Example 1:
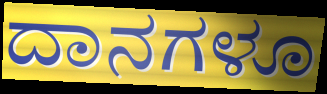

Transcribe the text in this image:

ದಾನಗಳೂ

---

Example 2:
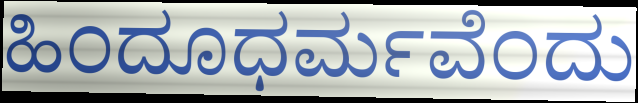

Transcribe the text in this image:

ಹಿಂದೂಧರ್ಮವೆಂದು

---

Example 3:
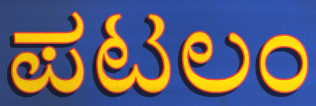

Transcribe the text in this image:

ಪಟಲಂ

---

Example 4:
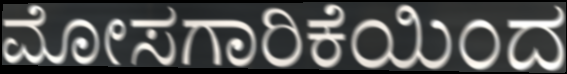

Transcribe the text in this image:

ಮೋಸಗಾರಿಕೆಯಿಂದ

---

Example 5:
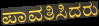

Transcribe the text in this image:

ಪಾವತಿಸಿದರು